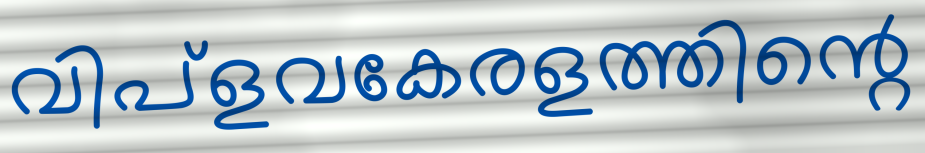
വിപ്ളവകേരളത്തിന്റെ